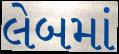
લેબમાં